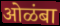
ओळंबा